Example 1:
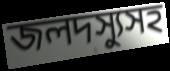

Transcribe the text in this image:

জলদস্যুসহ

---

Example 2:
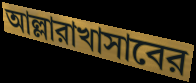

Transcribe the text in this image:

আল্লারাখাসাবের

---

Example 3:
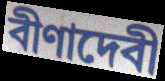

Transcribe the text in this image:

বীণাদেবী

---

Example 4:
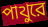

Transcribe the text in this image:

পাথুরে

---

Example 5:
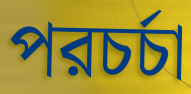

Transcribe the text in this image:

পরচর্চা